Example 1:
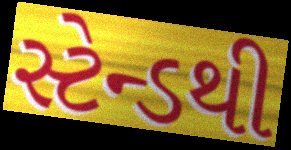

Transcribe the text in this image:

સ્ટેન્ડથી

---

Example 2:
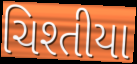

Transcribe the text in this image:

ચિશ્તીયા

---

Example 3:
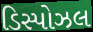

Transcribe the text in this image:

ડિસ્પોઝલ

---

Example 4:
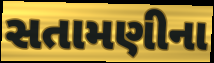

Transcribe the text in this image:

સતામણીના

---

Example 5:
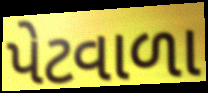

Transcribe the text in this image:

પેટવાળા